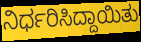
ನಿರ್ಧರಿಸಿದ್ದಾಯಿತು